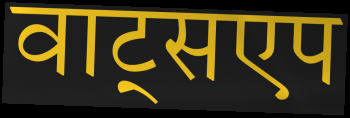
वाट्सएप